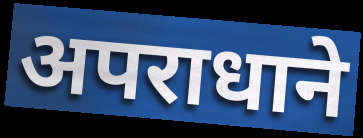
अपराधाने